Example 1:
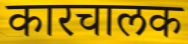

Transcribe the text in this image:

कारचालक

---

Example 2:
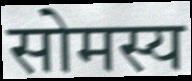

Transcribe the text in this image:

सोमस्य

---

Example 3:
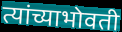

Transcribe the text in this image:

त्यांच्याभोवती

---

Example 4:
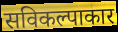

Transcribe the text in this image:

सविकल्पाकार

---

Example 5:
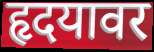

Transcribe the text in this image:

हृदयावर